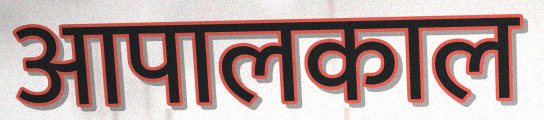
आपालकाल